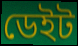
ডেইট